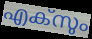
എക്‌സും